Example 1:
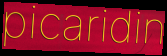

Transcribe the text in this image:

picaridin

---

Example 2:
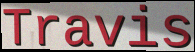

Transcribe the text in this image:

Travis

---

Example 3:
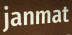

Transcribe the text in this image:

janmat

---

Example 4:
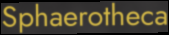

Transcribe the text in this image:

Sphaerotheca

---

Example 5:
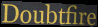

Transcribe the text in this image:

Doubtfire